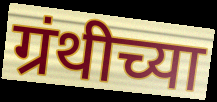
ग्रंथीच्या